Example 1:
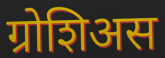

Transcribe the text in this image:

ग्रोशिअस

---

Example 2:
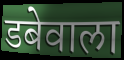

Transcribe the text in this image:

डबेवाला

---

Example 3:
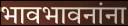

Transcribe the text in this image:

भावभावनांना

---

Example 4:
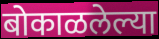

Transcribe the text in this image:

बोकाळलेल्या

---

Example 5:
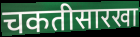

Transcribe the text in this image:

चकतीसारखा